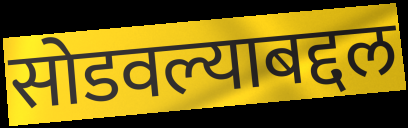
सोडवल्याबद्दल